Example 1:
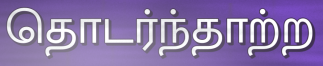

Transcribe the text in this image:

தொடர்ந்தாற்ற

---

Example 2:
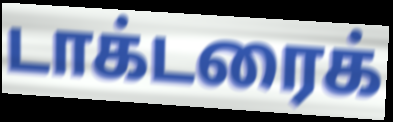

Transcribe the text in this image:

டாக்டரைக்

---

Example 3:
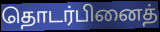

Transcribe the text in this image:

தொடர்பினைத்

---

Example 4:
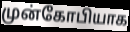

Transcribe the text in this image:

முன்கோபியாக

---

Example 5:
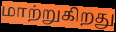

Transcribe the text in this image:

மாற்றுகிறது